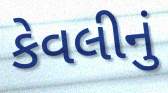
કેવલીનું